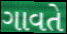
ગાવતે